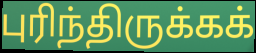
புரிந்திருக்கக்